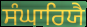
ਸੰਘਾਰਿਯੈ